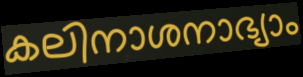
കലിനാശനാഭ്യാം